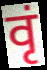
वृं